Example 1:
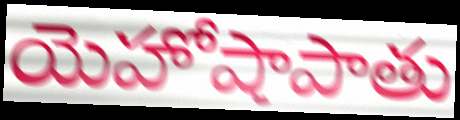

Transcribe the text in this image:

యెహోషాపాతు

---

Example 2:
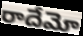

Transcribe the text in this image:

రాదేమో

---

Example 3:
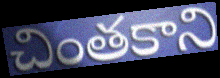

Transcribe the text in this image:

చింతకాని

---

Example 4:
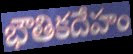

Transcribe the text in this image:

భౌతికదేహం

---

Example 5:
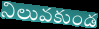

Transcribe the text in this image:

నిలువకుండ